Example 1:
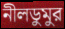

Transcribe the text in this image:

নীলডুমুর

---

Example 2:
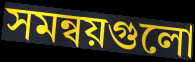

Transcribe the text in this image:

সমন্বয়গুলো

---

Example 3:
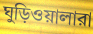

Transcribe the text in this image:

ঘুড়িওয়ালারা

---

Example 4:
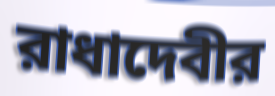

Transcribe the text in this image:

রাধাদেবীর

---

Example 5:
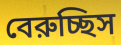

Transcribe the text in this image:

বেরুচ্ছিস